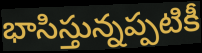
భాసిస్తున్నప్పటికీ